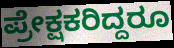
ಪ್ರೇಕ್ಷಕರಿದ್ದರೂ